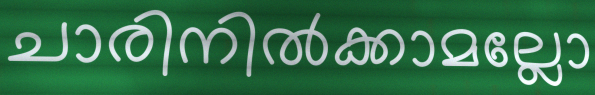
ചാരിനിൽക്കാമല്ലോ